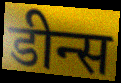
डीन्स